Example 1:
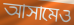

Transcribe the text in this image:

আসামেও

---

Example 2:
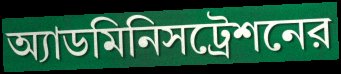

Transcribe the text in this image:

অ্যাডমিনিসট্রেশনের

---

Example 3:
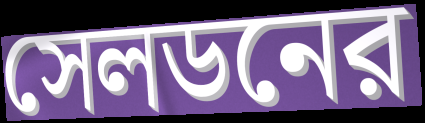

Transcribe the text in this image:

সেলডনের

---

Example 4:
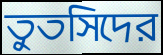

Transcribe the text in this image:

তুতসিদের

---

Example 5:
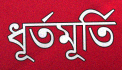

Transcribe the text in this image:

ধূর্তমূর্তি